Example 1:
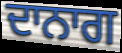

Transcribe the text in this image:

ਦਾਨਾਗ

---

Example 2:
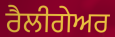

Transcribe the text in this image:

ਰੈਲੀਗੇਅਰ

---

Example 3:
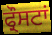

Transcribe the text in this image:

ਫ੍ਰੌਸਟਾਂ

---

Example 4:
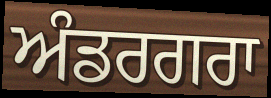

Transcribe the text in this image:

ਅੰਡਰਗਰਾ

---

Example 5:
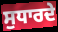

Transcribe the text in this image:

ਸੁਧਾਰਦੇ